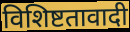
विशिष्टतावादी